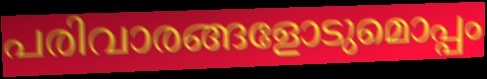
പരിവാരങ്ങളോടുമൊപ്പം